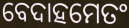
ବେଦାହମେତଂ